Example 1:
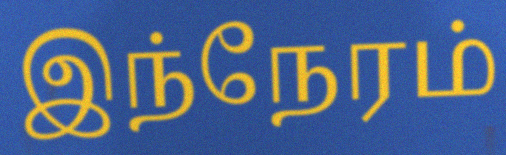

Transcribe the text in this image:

இந்நேரம்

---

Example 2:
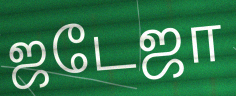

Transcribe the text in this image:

ஜடேஜா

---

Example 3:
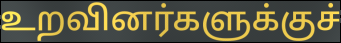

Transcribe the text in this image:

உறவினர்களுக்குச்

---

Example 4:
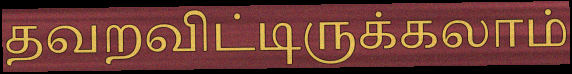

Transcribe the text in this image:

தவறவிட்டிருக்கலாம்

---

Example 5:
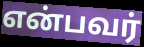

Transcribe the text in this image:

என்பவர்